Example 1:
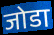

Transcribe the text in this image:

जोडा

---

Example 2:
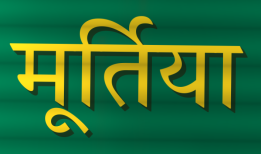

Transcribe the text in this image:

मूर्तिया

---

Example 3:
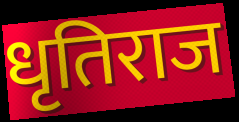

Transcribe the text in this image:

धृतिराज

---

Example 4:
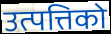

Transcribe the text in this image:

उत्पत्तिको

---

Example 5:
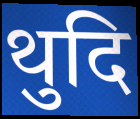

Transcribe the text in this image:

थुदि